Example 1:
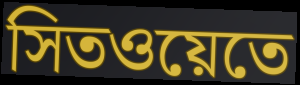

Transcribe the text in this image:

সিতওয়েতে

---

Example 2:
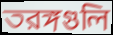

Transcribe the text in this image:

তরঙ্গগুলি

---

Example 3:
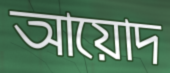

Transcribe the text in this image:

আয়োদ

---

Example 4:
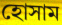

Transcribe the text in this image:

হোসাম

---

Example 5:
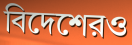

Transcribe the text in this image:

বিদেশেরও